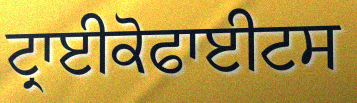
ਟ੍ਰਾਈਕੋਫਾਈਟਸ